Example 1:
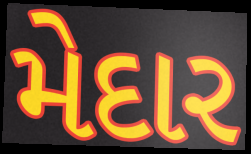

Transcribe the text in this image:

મેદાર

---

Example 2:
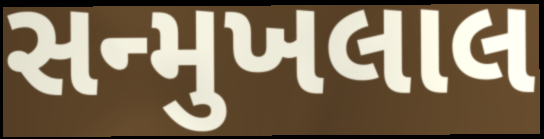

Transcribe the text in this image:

સન્મુખલાલ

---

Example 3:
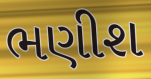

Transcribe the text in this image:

ભણીશ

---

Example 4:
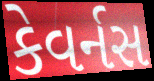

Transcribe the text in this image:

કેવર્નસ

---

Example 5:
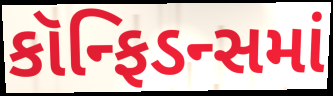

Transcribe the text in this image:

કૉન્ફિડન્સમાં